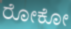
ರೋಕೋ